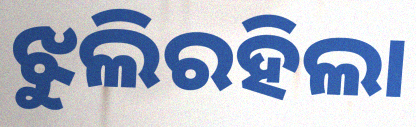
ଝୁଲିରହିଲା